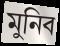
মুনিব